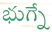
భుగ్నే